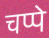
चप्पे